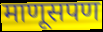
माणूसपण